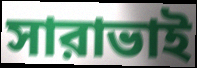
সারাভাই